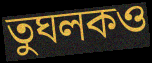
তুঘলকও